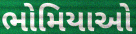
ભોમિયાઓ